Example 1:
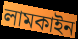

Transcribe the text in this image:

লামকাইন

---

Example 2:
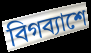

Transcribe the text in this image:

বিগব্যাশে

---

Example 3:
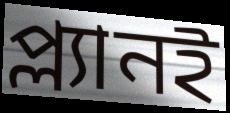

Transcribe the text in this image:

প্ল্যানই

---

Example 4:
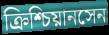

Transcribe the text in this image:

ক্রিশ্চিয়ানসেন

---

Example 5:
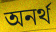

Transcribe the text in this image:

অনর্থ